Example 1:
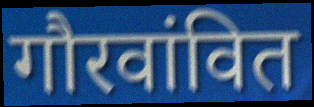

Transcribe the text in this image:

गौरवांवित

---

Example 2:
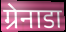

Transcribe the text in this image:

ग्रेनाडा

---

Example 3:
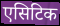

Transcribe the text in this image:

एसिटिक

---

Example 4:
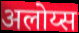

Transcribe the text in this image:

अलोय्स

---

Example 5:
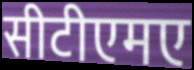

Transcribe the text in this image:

सीटीएमए